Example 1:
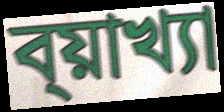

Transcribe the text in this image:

ব্য়াখ্যা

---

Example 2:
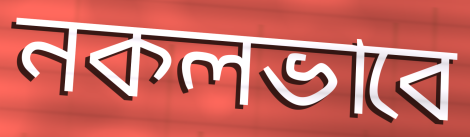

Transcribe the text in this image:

নকলভাবে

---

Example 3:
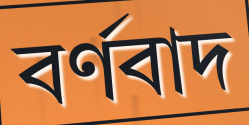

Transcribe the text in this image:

বর্ণবাদ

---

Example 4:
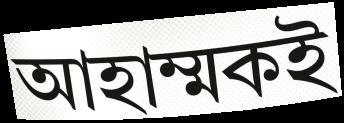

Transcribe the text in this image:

আহাম্মকই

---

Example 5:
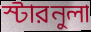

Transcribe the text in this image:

স্টারনুলা